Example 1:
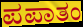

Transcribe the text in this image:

ಪಪಾತಂ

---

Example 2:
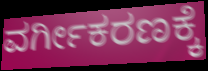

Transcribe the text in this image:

ವರ್ಗೀಕರಣಕ್ಕೆ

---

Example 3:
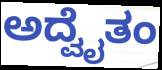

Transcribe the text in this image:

ಅದ್ವೈತಂ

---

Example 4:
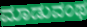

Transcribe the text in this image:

ಮಾಡುವಂಥ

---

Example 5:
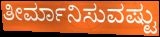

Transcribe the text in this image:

ತೀರ್ಮಾನಿಸುವಷ್ಟು